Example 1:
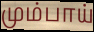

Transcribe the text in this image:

மும்பாய்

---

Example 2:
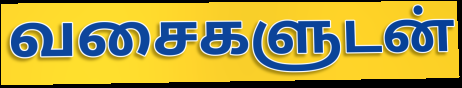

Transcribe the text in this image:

வசைகளுடன்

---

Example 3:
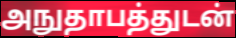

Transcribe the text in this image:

அநுதாபத்துடன்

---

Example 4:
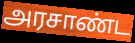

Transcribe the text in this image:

அரசாண்ட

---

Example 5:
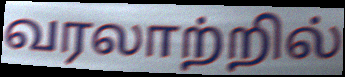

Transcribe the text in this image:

வரலாற்றில்